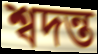
শ্বদন্ত